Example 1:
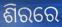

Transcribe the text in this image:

ଶିରରେ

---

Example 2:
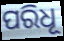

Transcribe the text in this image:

ପରିଧୂ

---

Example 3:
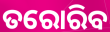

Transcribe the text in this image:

ତରୋରିବ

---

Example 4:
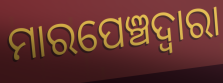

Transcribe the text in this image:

ମାରପେଞ୍ଚଦ୍ବାରା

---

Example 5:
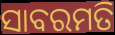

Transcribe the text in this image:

ସାବରମତି